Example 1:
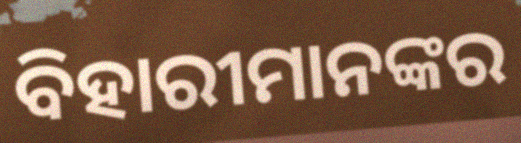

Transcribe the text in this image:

ବିହାରୀମାନଙ୍କର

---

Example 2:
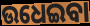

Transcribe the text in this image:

ଉଧେଇବା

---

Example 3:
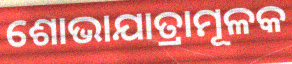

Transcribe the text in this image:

ଶୋଭାଯାତ୍ରାମୂଳକ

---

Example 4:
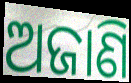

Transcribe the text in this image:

ଅଜାଣି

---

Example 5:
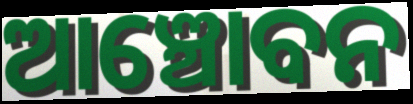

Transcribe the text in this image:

ଆଞ୍ଚୋବନ